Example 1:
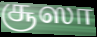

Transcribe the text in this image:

சூஸா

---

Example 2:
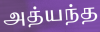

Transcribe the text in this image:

அத்யந்த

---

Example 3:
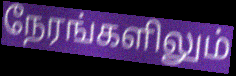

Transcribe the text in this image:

நேரங்களிலும்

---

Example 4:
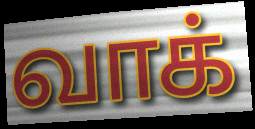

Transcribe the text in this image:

வாக்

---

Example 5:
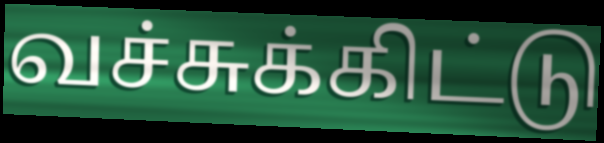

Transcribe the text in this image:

வச்சுக்கிட்டு